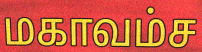
மகாவம்ச